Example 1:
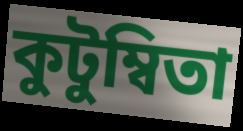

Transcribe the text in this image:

কুটুম্বিতা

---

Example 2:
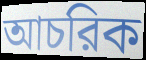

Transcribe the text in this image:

আচরিক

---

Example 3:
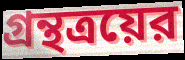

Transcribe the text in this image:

গ্রন্থত্রয়ের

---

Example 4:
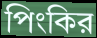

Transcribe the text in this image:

পিংকির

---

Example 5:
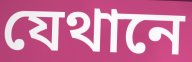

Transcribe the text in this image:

যেথানে